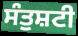
ਸੰਤੁਸ਼ਟੀ